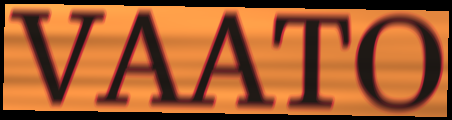
VAATO